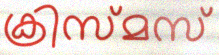
ക്രിസ്മസ്